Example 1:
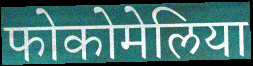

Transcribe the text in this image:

फोकोमेलिया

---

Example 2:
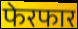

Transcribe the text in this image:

फेरफार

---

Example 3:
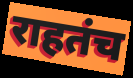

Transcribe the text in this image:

राहतंच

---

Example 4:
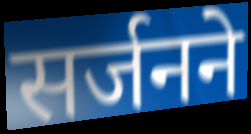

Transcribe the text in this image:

सर्जनने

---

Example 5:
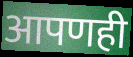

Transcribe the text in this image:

आपणही